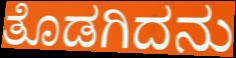
ತೊಡಗಿದನು